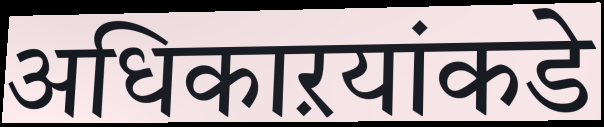
अधिकाऱयांकडे